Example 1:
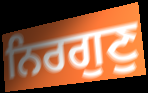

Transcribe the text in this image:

ਨਿਰਗੁਣੁ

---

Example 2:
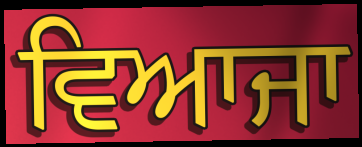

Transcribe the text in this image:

ਵਿਆਜਾ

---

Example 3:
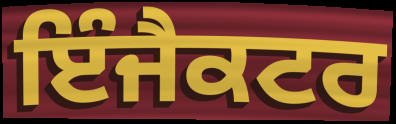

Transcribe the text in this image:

ਇੰਜੈਕਟਰ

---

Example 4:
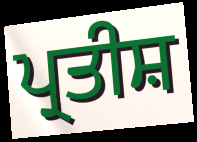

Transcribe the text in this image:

ਪ੍ਰਤੀਸ਼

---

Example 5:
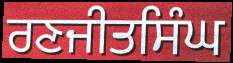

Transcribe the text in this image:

ਰਣਜੀਤਸਿੰਘ